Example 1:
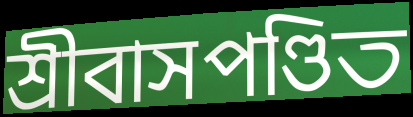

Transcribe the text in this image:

শ্রীবাসপণ্ডিত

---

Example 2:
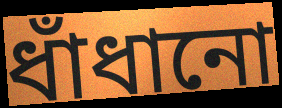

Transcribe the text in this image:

ধাঁধানো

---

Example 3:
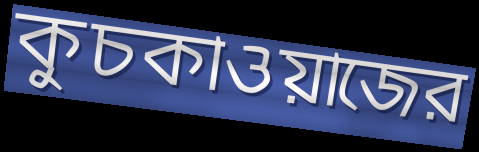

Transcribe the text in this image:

কুচকাওয়াজের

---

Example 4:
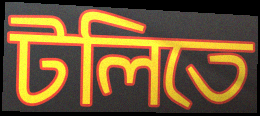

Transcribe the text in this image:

টলিতে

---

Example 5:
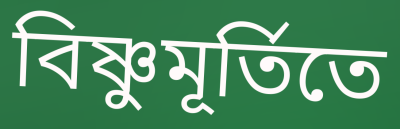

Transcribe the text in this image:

বিষ্ণুমূর্তিতে